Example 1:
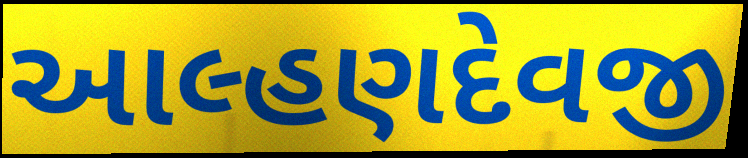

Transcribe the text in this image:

આલ્હણદેવજી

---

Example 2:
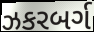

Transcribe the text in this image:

ઝકરબર્ગ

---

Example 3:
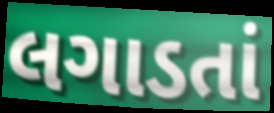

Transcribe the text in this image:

લગાડતાં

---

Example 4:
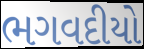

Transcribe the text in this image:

ભગવદીયો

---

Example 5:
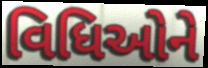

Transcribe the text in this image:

વિધિઓને